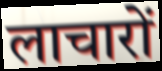
लाचारों